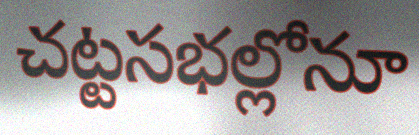
చట్టసభల్లోనూ